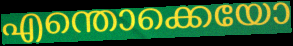
എന്തൊക്കെയോ